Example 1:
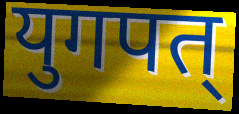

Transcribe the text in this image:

युगपत्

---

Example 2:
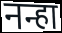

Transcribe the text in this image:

नन्हा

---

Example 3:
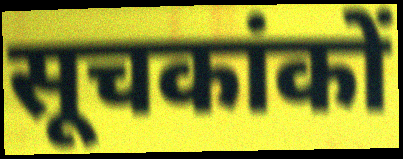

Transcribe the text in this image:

सूचकांकों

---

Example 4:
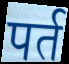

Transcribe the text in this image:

पर्त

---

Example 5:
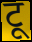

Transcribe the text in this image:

टू